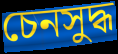
চেনসুদ্ধ